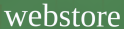
webstore